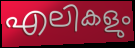
എലികളും